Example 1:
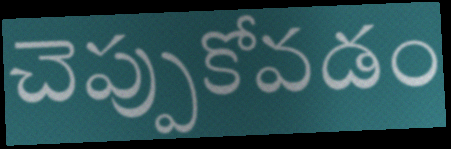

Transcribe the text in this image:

చెప్పుకోవడం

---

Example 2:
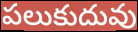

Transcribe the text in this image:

పలుకుదువు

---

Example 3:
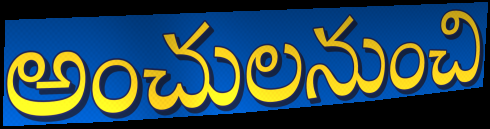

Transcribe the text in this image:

అంచులనుంచి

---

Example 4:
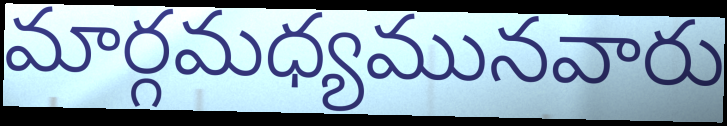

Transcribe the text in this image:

మార్గమధ్యమునవారు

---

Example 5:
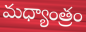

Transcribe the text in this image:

మధ్యాంత్రం